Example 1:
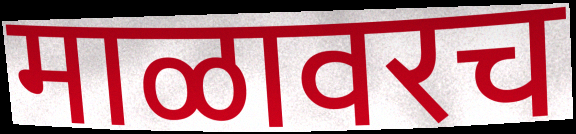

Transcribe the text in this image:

माळावरच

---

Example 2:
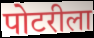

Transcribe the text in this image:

पोटरीला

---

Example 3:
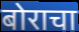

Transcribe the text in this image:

बोराचा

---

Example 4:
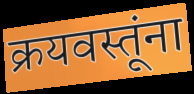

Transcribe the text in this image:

क्रयवस्तूंना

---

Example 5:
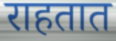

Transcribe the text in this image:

राहतात